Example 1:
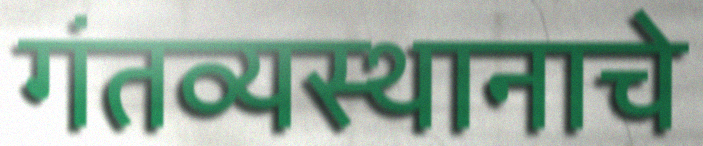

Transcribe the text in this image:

गंतव्यस्थानाचे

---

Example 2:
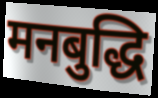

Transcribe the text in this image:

मनबुद्धि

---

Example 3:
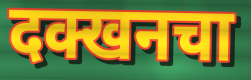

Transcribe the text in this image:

दक्खनचा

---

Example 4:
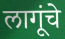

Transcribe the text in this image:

लागूंचे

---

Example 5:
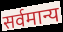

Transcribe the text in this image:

सर्वमान्य